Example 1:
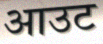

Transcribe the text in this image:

आउट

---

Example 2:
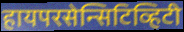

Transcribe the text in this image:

हायपरसेन्सिटिव्हिटी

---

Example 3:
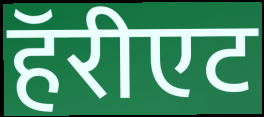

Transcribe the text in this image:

हॅरीएट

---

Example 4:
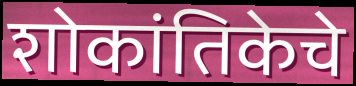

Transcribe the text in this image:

शोकांतिकेचे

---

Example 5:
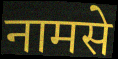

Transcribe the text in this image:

नामसे